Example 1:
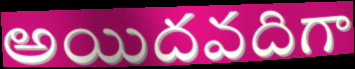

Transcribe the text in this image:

అయిదవదిగా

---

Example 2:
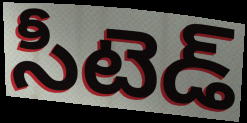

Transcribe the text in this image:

సీటెడ్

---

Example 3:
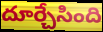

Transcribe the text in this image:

దూర్చేసింది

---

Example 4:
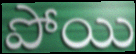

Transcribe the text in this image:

పోయి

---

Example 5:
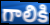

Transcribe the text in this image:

గాలికి